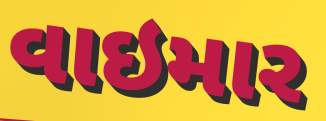
વાઇમાર